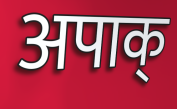
अपाक्